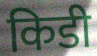
किडी